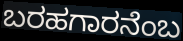
ಬರಹಗಾರನೆಂಬ